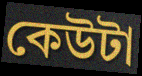
কেউটা